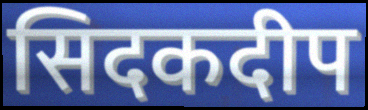
सिदकदीप